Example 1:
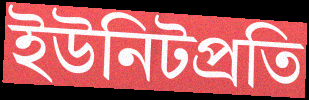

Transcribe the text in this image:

ইউনিটপ্রতি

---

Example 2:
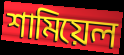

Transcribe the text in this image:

শামিয়েল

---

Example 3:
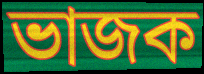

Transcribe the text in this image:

ভাজক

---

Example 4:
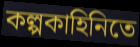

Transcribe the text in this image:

কল্পকাহিনিতে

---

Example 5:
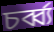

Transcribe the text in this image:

চর্ব্ব্য